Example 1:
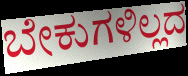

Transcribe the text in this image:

ಬೇಕುಗಳಿಲ್ಲದ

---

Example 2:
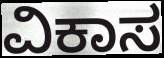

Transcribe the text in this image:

ವಿಕಾಸ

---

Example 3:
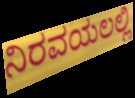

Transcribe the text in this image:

ನಿರವಯಲಲ್ಲಿ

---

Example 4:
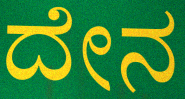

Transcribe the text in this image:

ದೇನ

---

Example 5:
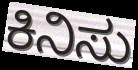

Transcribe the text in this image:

ಕಿನಿಸು